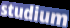
studium